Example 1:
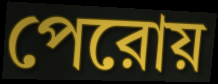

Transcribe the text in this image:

পেরোয়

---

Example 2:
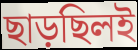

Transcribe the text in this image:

ছাড়ছিলই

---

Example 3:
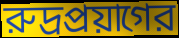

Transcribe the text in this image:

রুদ্রপ্রয়াগের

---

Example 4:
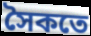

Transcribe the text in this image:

সৈকতে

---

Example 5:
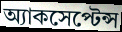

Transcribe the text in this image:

অ্যাকসেপ্টেন্স